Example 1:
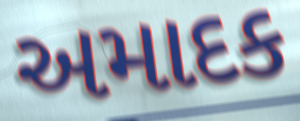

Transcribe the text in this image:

અમાદક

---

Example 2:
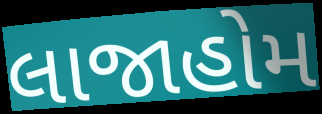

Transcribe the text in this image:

લાજાહોમ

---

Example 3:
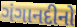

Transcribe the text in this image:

ગંગાનદીનો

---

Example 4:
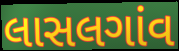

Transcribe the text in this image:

લાસલગાંવ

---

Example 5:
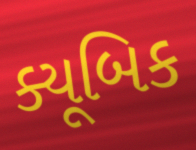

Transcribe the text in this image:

ક્યૂબિક